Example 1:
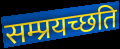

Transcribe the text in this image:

सम्प्रयच्छति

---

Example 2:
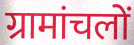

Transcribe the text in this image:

ग्रामांचलों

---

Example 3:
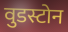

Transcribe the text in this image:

वुडस्टोन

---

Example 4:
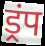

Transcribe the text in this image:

ड्रंप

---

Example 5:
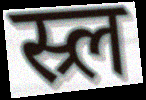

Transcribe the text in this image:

स्र्ल